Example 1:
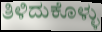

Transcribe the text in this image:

ತಿಳಿದುಕೊಳ್ಳು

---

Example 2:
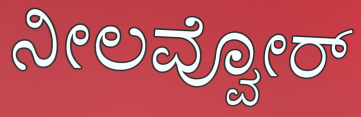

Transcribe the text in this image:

ನೀಲವ್ವೋರ್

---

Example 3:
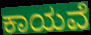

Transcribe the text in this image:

ಕಾಯವೆ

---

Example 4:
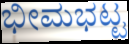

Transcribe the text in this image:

ಭೀಮಭಟ್ಟ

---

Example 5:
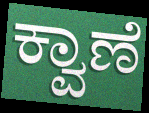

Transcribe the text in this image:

ಕ್ವಾಣೆ